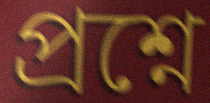
প্রশ্নে